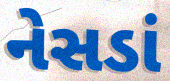
નેસડાં